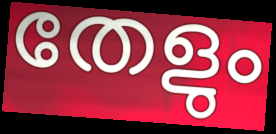
തേളും